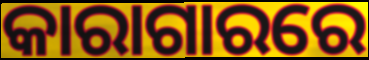
କାରାଗାରରେ